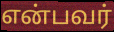
என்பவர்